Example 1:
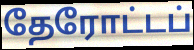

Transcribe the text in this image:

தேரோட்டப்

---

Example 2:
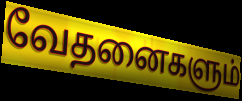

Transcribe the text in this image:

வேதனைகளும்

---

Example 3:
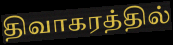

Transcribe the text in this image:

திவாகரத்தில்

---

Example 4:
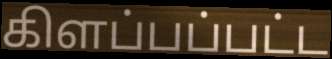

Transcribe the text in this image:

கிளப்பப்பட்ட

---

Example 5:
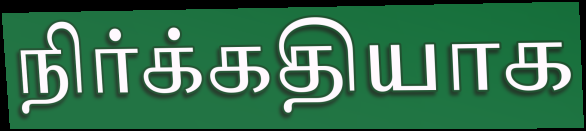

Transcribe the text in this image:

நிர்க்கதியாக